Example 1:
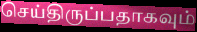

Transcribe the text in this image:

செய்திருப்பதாகவும்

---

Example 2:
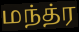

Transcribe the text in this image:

மந்த்ர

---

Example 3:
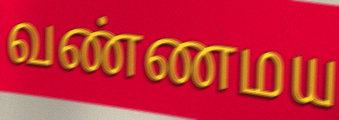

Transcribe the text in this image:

வண்ணமய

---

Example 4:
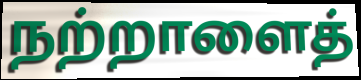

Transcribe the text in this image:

நற்றாளைத்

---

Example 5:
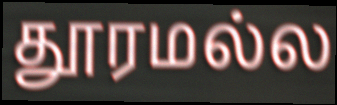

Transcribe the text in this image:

தூரமல்ல